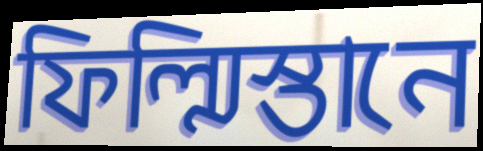
ফিল্মিস্তানে